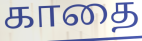
காதை